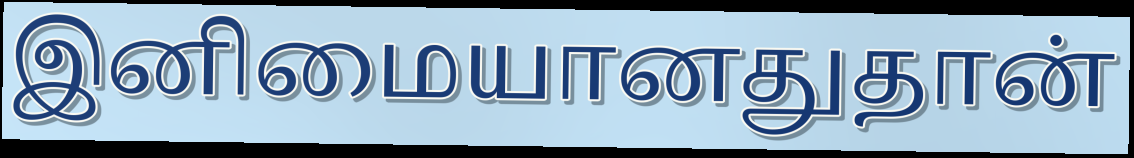
இனிமையானதுதான்